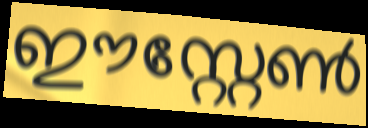
ഈസ്റ്റേൺ